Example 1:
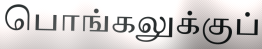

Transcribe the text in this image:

பொங்கலுக்குப்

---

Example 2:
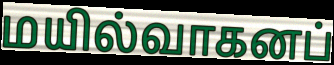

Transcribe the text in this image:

மயில்வாகனப்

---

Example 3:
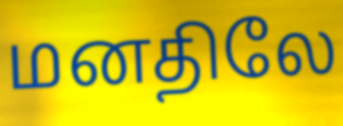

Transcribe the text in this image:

மனதிலே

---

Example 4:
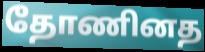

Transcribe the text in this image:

தோணினத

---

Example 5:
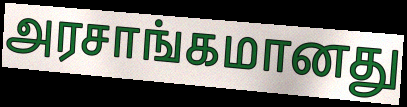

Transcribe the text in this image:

அரசாங்கமானது